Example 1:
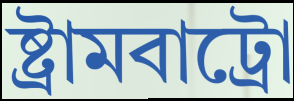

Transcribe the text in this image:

ষ্ট্ৰামবাট্ৰো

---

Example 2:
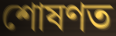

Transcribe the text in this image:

শোষণত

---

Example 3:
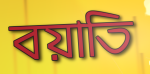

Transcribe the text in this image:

বয়াতি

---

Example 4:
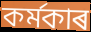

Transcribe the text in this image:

কৰ্মকাৰ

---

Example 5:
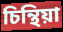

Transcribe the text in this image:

চিন্থিয়া